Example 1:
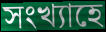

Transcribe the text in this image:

সংখ্যাহে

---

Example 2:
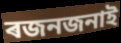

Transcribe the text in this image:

ৰজনজনাই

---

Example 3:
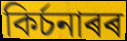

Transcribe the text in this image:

কিৰ্চনাৰৰ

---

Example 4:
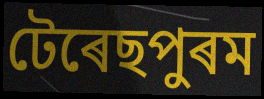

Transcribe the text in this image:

টেৰেছপুৰম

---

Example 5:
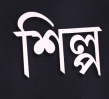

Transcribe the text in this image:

শিল্প